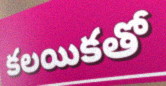
కలయికతో